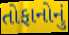
તોફાનોનું